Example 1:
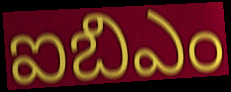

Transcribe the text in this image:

ఐబిఎం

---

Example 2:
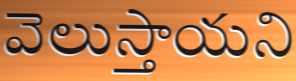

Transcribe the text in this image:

వెలుస్తాయని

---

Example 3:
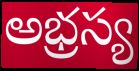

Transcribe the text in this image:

అభ్రస్య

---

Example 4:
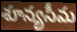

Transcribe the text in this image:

శూన్యసీమ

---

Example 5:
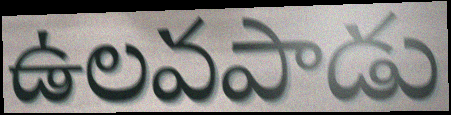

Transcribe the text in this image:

ఉలవపాడు